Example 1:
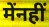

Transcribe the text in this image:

मेंनहीं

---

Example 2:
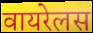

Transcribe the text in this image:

वायरेलस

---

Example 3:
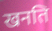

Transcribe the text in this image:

खनति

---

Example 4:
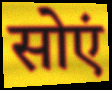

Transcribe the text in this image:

सोएं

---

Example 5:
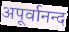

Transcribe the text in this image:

अपूर्वानन्द